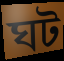
ঘট